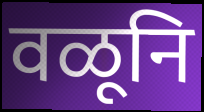
वळूनि